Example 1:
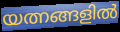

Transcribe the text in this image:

യത്നങ്ങളിൽ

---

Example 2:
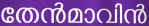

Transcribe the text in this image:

തേൻമാവിൻ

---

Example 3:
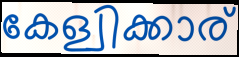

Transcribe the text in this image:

കേള്വിക്കാര്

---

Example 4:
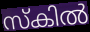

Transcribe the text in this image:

സ്കിൽ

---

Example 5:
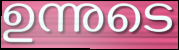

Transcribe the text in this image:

ഉന്നുടെ